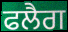
ਫਲੈਗ